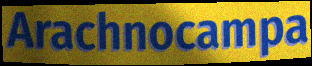
Arachnocampa